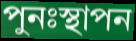
পুনঃস্থাপন